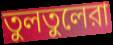
তুলতুলেরা